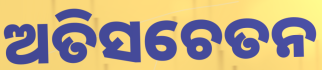
ଅତିସଚେତନ